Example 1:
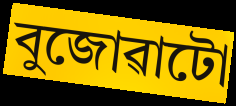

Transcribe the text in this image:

বুজোৱাটো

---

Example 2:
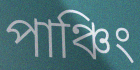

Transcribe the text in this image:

পাঞ্চিং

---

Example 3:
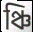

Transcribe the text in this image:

ঞ্চি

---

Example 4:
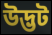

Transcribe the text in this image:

উদ্ভট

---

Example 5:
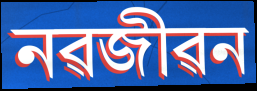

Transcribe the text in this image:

নৱজীৱন